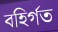
বহির্গত